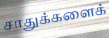
சாதுக்களைக்